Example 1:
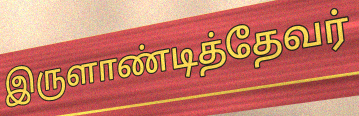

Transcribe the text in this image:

இருளாண்டித்தேவர்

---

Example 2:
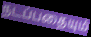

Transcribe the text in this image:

நடப்பதையும்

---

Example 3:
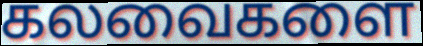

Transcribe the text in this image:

கலவைகளை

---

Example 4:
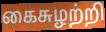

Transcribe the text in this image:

கைசுழற்றி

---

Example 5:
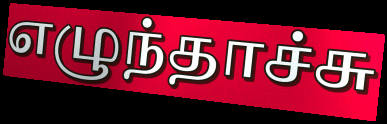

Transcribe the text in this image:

எழுந்தாச்சு